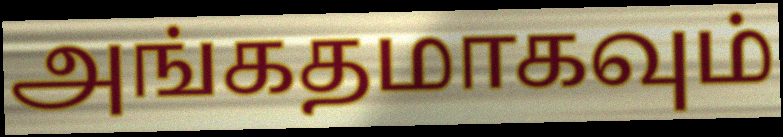
அங்கதமாகவும்